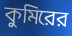
কুমিরের